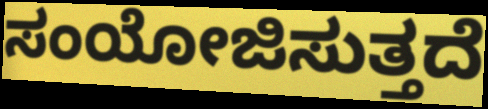
ಸಂಯೋಜಿಸುತ್ತದೆ